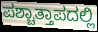
ಪಶ್ಚಾತ್ತಾಪದಲ್ಲಿ